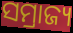
ସମ୍ରାଜ୍ୟ